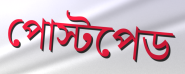
পোস্টপেড